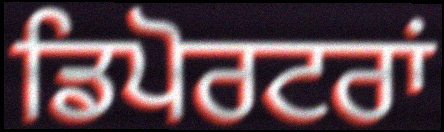
ਡਿਪੋਰਟਰਾਂ